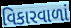
વિકારવાળાં